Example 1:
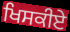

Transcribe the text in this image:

ਖਿਸਕੀਏ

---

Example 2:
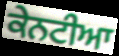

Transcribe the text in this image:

ਕੇਨਟੀਆ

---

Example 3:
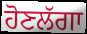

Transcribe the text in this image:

ਹੋਣਲੱਗਾ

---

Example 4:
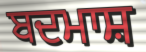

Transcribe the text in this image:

ਬਦਮਾਸ਼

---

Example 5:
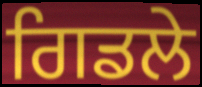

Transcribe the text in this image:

ਗਿਡਲੇ